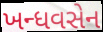
ખન્ધવસેન